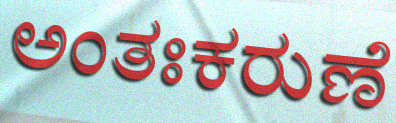
ಅಂತಃಕರುಣೆ